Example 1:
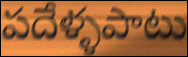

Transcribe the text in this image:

పదేళ్ళపాటు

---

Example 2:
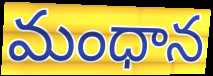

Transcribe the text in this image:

మంధాన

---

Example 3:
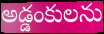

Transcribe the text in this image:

అడ్డంకులను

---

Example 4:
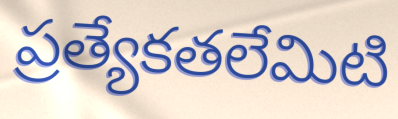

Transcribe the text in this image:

ప్రత్యేకతలేమిటి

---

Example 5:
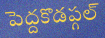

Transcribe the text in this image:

పెద్దకొడప్గల్